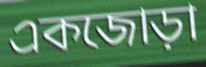
একজোড়া